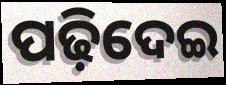
ପଢ଼ିଦେଇ